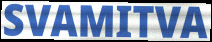
SVAMITVA